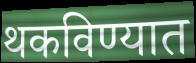
थकविण्यात